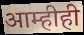
आम्हीही